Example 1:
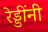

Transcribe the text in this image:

रेड्डींनी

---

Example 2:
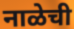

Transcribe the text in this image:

नाळेची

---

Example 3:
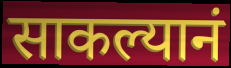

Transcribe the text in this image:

साकल्यानं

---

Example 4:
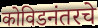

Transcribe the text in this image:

कोविडनंतरचे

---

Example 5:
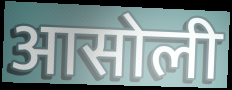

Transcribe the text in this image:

आसोली